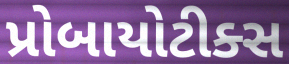
પ્રોબાયોટીક્સ